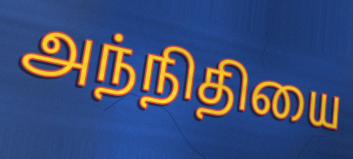
அந்நிதியை